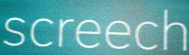
screech